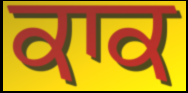
ਕਾਕ